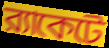
র‍্যাকেটে